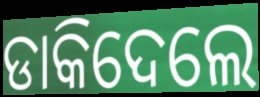
ଡାକିଦେଲେ